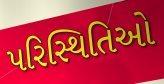
પરિસ્થિતિઓ